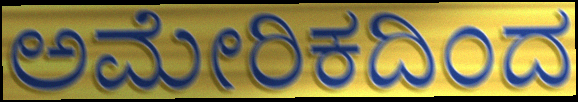
ಅಮೇರಿಕದಿಂದ